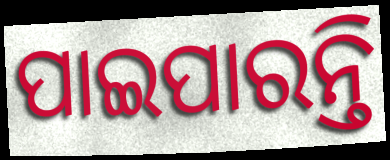
ପାଇପାରନ୍ତି